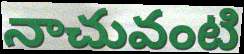
నాచువంటి